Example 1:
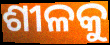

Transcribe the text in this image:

ଶୀଳକୁ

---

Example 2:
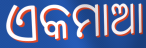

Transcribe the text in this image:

ଏକମାଆ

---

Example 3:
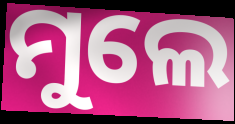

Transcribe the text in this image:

ମୁଲେ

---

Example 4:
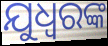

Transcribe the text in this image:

ଯୁଧ୍ଵରଙ୍କ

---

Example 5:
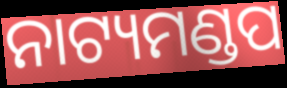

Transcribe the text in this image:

ନାଟ୍ୟମଣ୍ଡପ